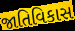
જાતિવિકાસ